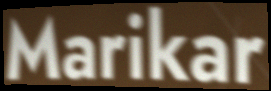
Marikar